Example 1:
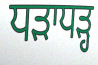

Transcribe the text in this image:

ਧੜਾਧੜ੍ਹ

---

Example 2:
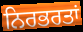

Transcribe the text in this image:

ਨਿਰਭਰਤਾਂ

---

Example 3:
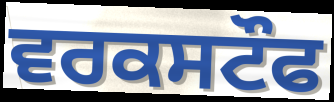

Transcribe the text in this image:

ਵਰਕਸਟੌਫ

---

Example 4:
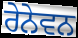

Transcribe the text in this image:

ਰੇਨੇਵਨ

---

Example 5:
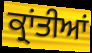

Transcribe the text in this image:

ਕ੍ਰਾਂਤੀਆਂ